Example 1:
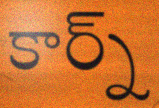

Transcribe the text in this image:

కార్న్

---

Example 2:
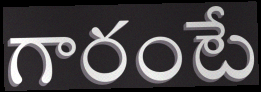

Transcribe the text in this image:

గారంటే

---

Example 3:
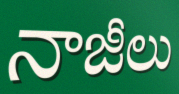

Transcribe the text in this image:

నాజీలు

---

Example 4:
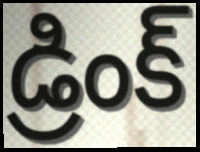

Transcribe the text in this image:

డ్రింక్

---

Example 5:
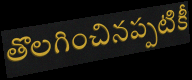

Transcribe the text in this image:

తొలగించినప్పటికీ